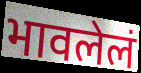
भावलेलं